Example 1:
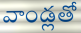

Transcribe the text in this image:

వాండ్లతో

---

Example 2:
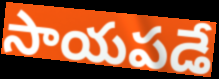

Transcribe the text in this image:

సాయపడే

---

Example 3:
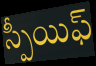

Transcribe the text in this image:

స్పీయిఫ్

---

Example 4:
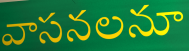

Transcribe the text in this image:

వాసనలనూ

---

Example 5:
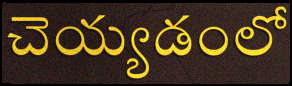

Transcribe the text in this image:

చెయ్యడంలో